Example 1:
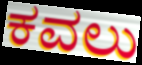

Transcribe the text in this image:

ಕವಲು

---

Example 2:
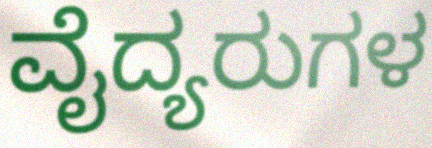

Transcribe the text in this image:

ವೈದ್ಯರುಗಳ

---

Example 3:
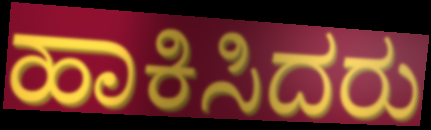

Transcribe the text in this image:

ಹಾಕಿಸಿದರು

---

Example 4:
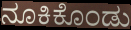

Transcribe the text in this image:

ನೂಕಿಕೊಂಡು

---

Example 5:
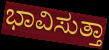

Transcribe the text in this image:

ಭಾವಿಸುತ್ತಾ